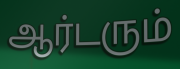
ஆர்டரும்